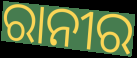
ରାନୀର